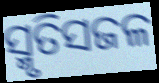
ସ୍ମୃତିସଜଳ